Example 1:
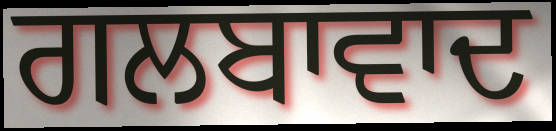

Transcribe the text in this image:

ਗਲਬਾਵਾਦ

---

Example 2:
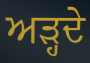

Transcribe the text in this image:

ਅੜ੍ਹਦੇ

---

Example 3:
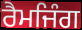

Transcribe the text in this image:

ਰੈਮਜਿੰਗ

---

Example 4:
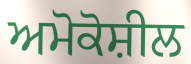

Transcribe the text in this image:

ਅਮੋਕੋਸ਼ੀਲ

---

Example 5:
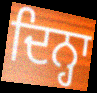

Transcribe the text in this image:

ਦਿਨ੍ਹਾ